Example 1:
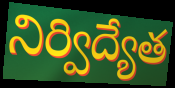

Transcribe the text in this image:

నిర్విద్యేత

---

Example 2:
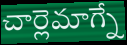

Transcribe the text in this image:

చార్లెమాగ్నే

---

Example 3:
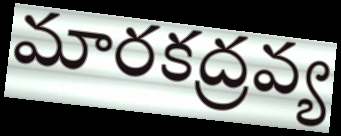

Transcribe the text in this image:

మారకద్రవ్య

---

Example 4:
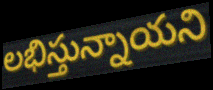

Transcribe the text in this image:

లభిస్తున్నాయని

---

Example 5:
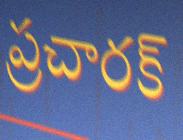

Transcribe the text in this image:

ప్రచారక్